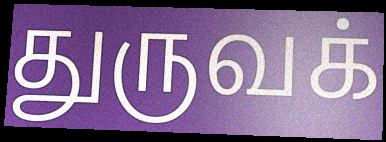
துருவக்